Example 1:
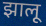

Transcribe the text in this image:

झालू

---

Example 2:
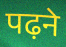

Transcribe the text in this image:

पढ़ने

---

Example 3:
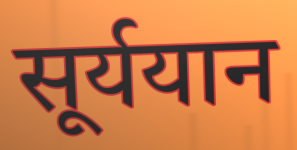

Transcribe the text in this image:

सूर्ययान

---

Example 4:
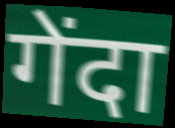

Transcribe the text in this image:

गेंदा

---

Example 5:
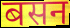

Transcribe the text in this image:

बसन